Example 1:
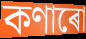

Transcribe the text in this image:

কণাৰো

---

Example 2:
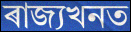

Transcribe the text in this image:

ৰাজ্যখনত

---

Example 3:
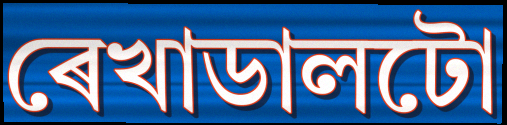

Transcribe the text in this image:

ৰেখাডালটো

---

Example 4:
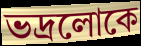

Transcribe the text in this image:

ভদ্ৰলোকে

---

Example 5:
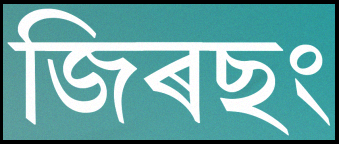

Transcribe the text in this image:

জিৰছং